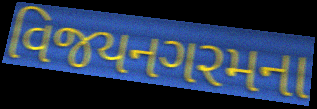
વિજયનગરમના